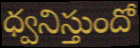
ధ్వనిస్తుందో